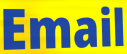
Email